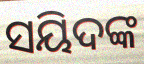
ସୟିଦଙ୍କ